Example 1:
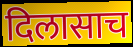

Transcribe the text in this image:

दिलासाच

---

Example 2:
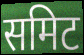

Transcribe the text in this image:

समिट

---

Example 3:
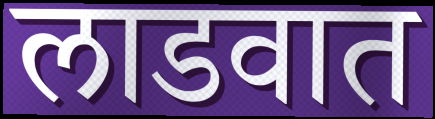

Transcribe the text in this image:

लाडवात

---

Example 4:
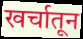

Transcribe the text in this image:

खर्चातून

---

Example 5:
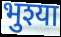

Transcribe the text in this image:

भुश्या